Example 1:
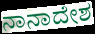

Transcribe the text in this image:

ನಾನಾದೇಶ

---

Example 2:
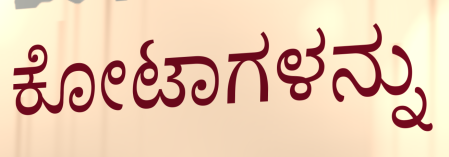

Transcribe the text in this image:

ಕೋಟಾಗಳನ್ನು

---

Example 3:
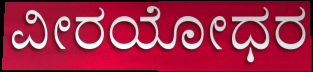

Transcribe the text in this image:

ವೀರಯೋಧರ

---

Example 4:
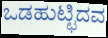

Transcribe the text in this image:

ಒಡಹುಟ್ಟಿದವ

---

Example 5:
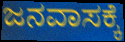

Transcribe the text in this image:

ಜನವಾಸಕ್ಕೆ